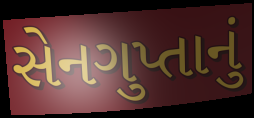
સેનગુપ્‍તાનું